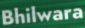
Bhilwara